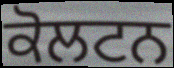
ਕੋਲਟਨ